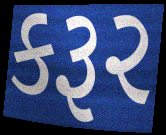
કરૂર